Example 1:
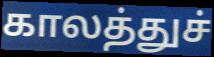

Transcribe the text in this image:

காலத்துச்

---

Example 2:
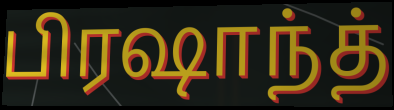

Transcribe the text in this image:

பிரஷாந்த்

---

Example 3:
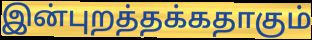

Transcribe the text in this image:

இன்புறத்தக்கதாகும்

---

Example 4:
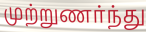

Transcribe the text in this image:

முற்றுணர்ந்து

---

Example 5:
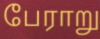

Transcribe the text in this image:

பேராறு